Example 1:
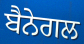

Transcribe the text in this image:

ਬੈਨੇਗਲ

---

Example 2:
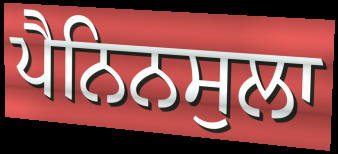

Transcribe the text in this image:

ਪੈਨਿਨਸੁਲਾ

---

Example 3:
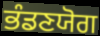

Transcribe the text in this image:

ਭੰਡਣਯੋਗ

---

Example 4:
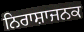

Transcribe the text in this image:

ਨਿਰਾਸ਼ਾਜਨਕ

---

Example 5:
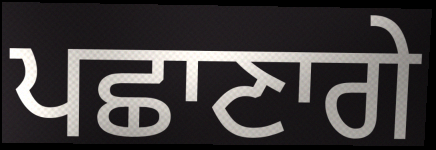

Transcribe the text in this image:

ਪਛਾਣਾਗੇ